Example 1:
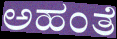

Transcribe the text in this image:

ಅಹಂತೆ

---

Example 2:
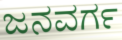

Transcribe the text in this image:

ಜನವರ್ಗ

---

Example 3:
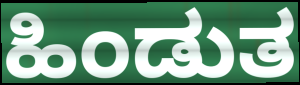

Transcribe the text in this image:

ಹಿಂಡುತ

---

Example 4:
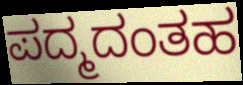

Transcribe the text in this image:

ಪದ್ಮದಂತಹ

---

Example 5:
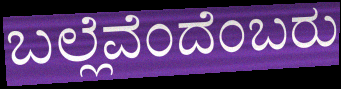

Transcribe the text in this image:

ಬಲ್ಲೆವೆಂದೆಂಬರು